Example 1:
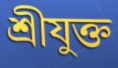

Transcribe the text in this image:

শ্রীযুক্ত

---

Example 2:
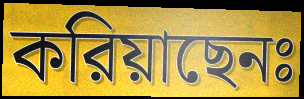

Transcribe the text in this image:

করিয়াছেনঃ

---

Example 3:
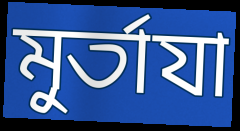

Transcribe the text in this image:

মুর্তাযা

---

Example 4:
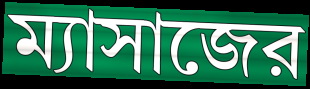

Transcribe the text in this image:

ম্যাসাজের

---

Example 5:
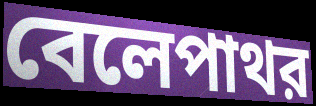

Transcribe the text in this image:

বেলেপাথর